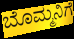
ಬೊಮ್ಮನಿಗೆ